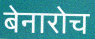
बेनारोच